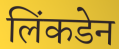
लिंकडेन